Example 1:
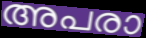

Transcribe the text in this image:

അപരാ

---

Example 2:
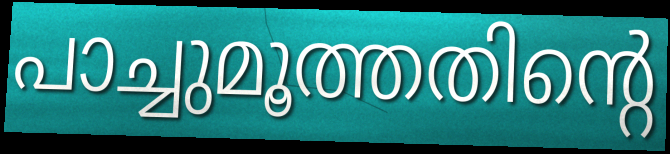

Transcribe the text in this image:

പാച്ചുമൂത്തതിന്റെ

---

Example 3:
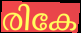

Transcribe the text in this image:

രികേ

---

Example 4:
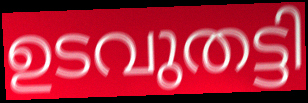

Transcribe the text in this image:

ഉടവുതട്ടി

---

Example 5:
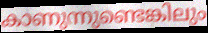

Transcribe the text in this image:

കാണുന്നുണ്ടെങ്കിലും